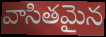
వాసితమైన